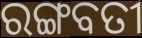
ରଙ୍ଗବତୀ